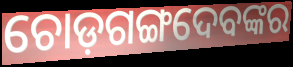
ଚୋଡ଼ଗଙ୍ଗଦେବଙ୍କର